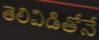
తెలివిడితోనే